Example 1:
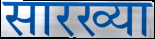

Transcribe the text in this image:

सारख्या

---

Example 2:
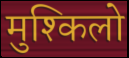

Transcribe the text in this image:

मुश्किलो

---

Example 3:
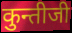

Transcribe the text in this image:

कुन्तीजी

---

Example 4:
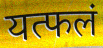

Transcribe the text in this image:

यत्फलं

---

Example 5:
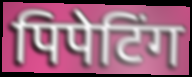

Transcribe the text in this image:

पिपेटिंग